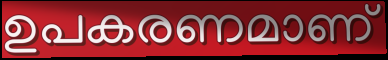
ഉപകരണമാണ്